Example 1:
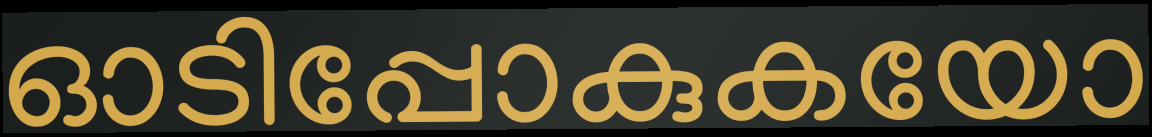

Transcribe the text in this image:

ഓടിപ്പോകുകയോ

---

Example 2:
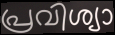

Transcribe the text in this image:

പ്രവിശ്യാ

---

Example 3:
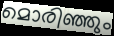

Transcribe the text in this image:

മൊരിഞ്ഞും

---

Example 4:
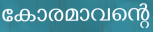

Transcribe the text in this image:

കോരമാവന്റെ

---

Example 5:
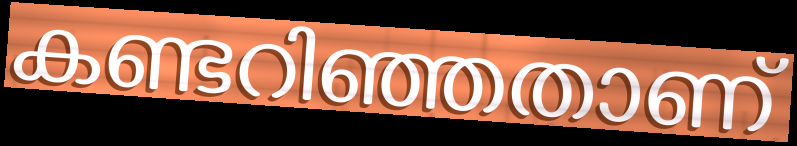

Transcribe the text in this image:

കണ്ടറിഞ്ഞതാണ്